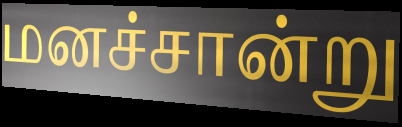
மனச்சான்று